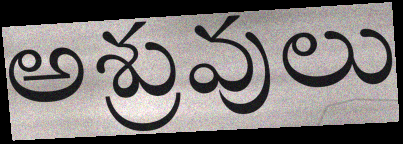
అశ్రువులు